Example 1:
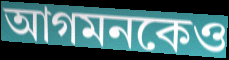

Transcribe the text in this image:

আগমনকেও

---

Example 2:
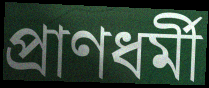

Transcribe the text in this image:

প্রাণধর্মী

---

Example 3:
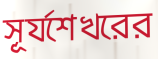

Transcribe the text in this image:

সূর্যশেখরের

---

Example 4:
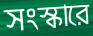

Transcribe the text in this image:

সংস্কারে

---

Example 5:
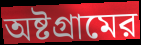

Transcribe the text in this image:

অষ্টগ্রামের